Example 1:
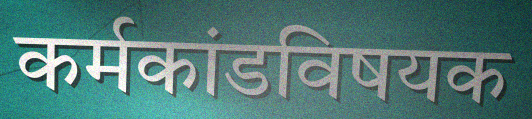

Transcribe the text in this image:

कर्मकांडविषयक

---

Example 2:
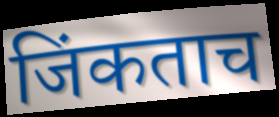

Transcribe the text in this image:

जिंकताच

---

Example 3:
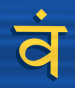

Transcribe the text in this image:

वं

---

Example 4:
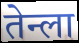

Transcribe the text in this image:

तेन्ला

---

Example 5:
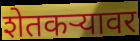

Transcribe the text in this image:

शेतकऱ्यावर